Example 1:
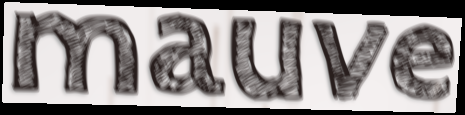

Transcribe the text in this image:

mauve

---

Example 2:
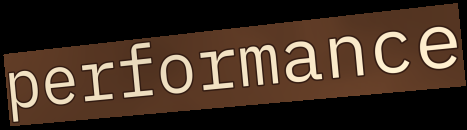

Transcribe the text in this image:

performance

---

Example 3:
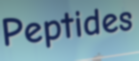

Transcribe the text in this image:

Peptides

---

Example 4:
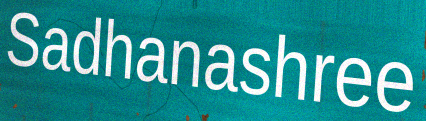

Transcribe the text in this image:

Sadhanashree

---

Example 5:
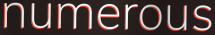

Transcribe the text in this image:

numerous